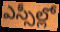
ఎస్సీల్లో